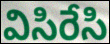
విసిరేసి